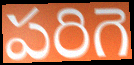
పరిగె